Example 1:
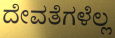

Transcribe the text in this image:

ದೇವತೆಗಳೆಲ್ಲ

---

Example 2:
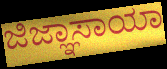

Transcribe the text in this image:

ಜಿಜ್ಞಾಸಾಯಾ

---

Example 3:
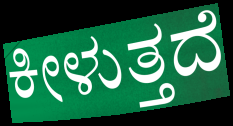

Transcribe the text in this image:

ಕೀಳುತ್ತದೆ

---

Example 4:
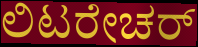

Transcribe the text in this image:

ಲಿಟರೇಚರ್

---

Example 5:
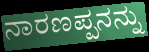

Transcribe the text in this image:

ನಾರಣಪ್ಪನನ್ನು